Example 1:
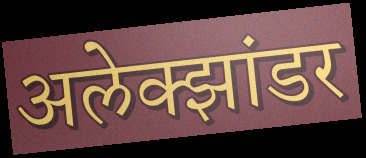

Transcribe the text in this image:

अलेक्झांडर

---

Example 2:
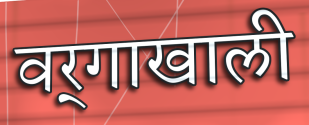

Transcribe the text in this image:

वर्गाखाली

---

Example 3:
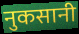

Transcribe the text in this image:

नुकसानी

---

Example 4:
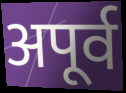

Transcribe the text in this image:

अपूर्व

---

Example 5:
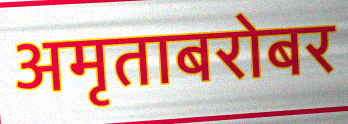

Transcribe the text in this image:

अमृताबरोबर